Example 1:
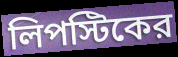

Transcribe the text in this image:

লিপস্টিকের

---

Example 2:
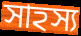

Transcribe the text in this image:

সাহস্য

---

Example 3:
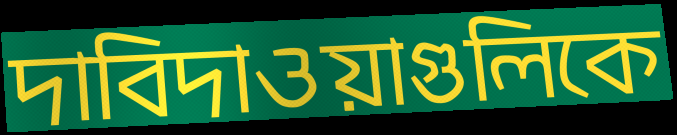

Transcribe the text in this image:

দাবিদাওয়াগুলিকে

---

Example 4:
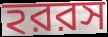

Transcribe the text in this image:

হররস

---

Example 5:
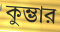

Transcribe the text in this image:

কুম্ভার